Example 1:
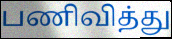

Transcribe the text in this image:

பணிவித்து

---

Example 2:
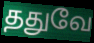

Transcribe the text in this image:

ததுவே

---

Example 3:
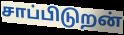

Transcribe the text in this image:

சாப்பிடுறன்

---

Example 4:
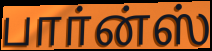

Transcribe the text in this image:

பார்ன்ஸ்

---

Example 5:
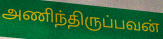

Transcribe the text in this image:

அணிந்திருப்பவன்